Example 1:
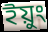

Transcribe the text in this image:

ইয়ুং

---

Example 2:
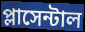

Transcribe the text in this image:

প্লাসেন্টাল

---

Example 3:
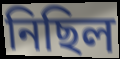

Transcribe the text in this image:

নিছিল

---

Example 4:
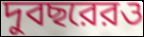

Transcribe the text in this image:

দুবছরেরও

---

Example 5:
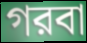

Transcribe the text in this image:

গরবা